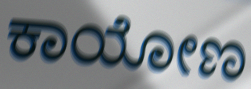
ಕಾಯೋಣ